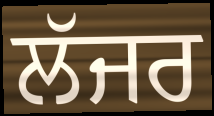
ਲੱਜਰ